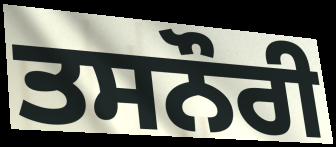
ਤਸਨੌਰੀ